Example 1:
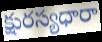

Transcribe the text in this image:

క్షురస్యధారా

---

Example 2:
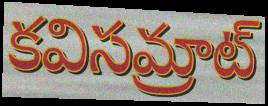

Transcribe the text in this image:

కవిసమ్రాట్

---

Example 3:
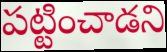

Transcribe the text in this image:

పట్టించాడని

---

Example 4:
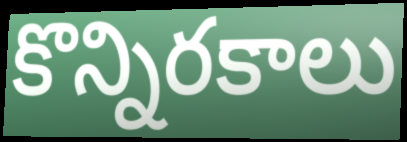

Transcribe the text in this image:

కొన్నిరకాలు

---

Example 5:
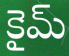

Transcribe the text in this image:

కైమ్